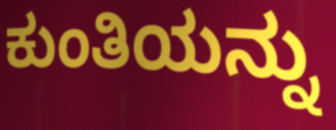
ಕುಂತಿಯನ್ನು